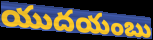
యుదయంబు